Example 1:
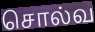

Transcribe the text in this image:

சொல்வ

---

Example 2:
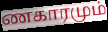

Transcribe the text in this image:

ணகாரமும்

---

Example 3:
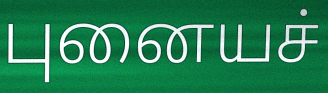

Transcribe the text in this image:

புனையச்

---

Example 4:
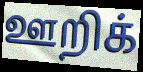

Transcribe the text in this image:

ஊறிக்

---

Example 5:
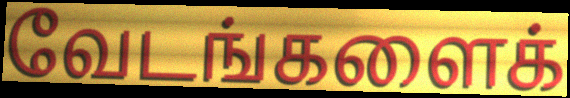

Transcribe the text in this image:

வேடங்களைக்